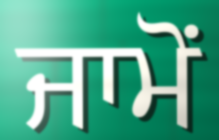
ਜਾਮੋਂ